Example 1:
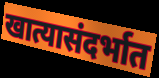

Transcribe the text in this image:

खात्यासंदर्भात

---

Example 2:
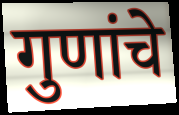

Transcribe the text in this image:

गुणांचे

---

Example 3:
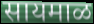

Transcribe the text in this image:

सायमाळ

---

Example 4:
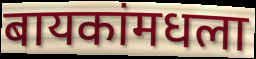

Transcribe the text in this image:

बायकांमधला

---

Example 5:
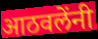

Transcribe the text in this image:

आठवलेंनी